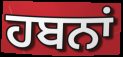
ਹਬਨਾਂ